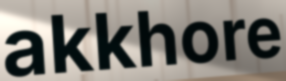
akkhore